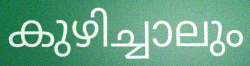
കുഴിച്ചാലും